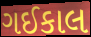
ગઈકાલ